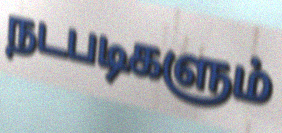
நடபடிகளும்